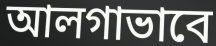
আলগাভাবে